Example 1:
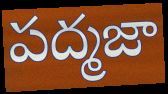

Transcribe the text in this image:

పద్మజా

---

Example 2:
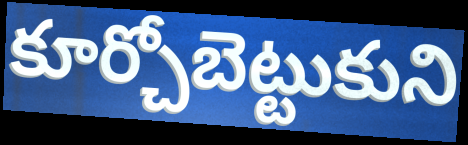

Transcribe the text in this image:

కూర్చోబెట్టుకుని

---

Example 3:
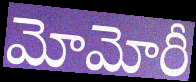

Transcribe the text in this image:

మోమోరీ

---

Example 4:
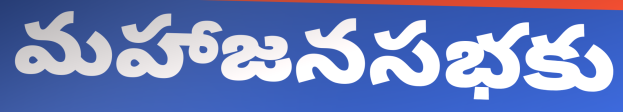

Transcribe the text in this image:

మహాజనసభకు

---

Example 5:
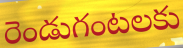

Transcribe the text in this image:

రెండుగంటలకు